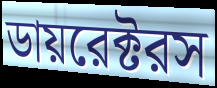
ডায়রেক্টরস